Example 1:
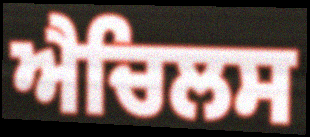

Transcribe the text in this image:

ਐਚਿਲਸ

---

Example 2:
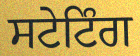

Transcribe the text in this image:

ਸਟੇਟਿੰਗ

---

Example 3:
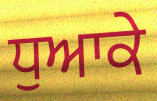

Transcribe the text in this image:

ਧੁਆਕੇ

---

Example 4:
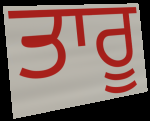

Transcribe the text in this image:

ਤਾਰੂ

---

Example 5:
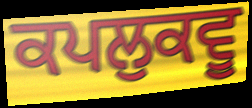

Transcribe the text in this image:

ਕਪਲੁਕਵੂ